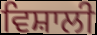
ਵਿਸ਼ਾਲੀ